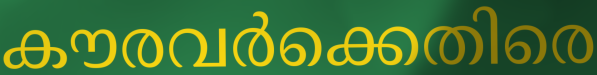
കൗരവർക്കെതിരെ